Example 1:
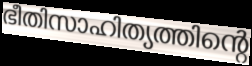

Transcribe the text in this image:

ഭീതിസാഹിത്യത്തിന്റെ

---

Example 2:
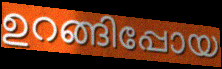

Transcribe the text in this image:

ഉറങ്ങിപ്പോയ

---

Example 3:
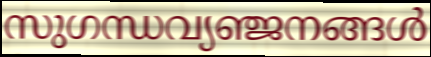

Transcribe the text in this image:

സുഗന്ധവ്യഞ്ജനങ്ങൾ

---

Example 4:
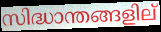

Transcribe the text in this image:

സിദ്ധാന്തങ്ങളില്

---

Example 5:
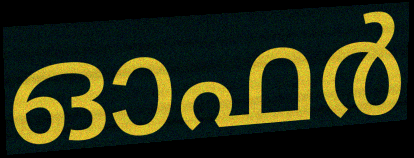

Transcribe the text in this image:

ഓഫർ